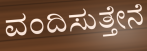
ವಂದಿಸುತ್ತೇನೆ